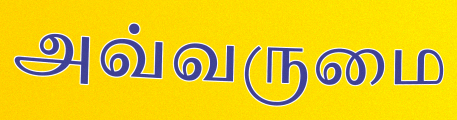
அவ்வருமை